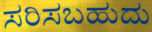
ಸರಿಸಬಹುದು